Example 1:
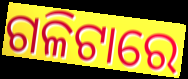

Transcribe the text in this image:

ଗଳିଟାରେ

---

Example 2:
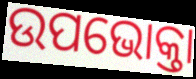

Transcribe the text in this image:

ଉପଭୋକ୍ତା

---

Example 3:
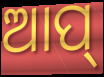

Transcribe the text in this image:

ଆପ୍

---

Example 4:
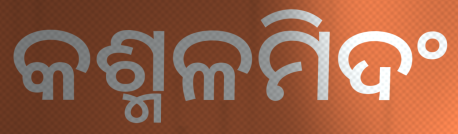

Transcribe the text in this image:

କଶ୍ମଳମିଦଂ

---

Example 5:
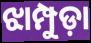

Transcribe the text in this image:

ଝାମ୍ପୁଡ଼ା